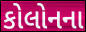
કોલોનના